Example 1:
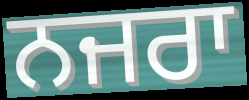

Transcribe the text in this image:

ਨਜਰਾ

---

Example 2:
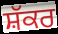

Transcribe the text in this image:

ਸ਼ੱਕਰ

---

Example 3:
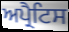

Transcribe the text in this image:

ਅਪ੍ਰੈਟਿਸ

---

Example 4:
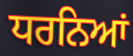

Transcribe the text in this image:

ਧਰਨਿਆਂ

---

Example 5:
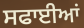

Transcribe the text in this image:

ਸਫਾਈਆਂ